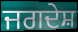
ਜਗਦੇਸ਼